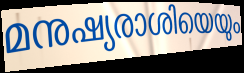
മനുഷ്യരാശിയെയും